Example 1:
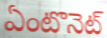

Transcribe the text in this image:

ఏంటొనెట్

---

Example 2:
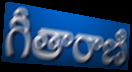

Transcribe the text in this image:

గీతారాణి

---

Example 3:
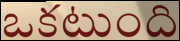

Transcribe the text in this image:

ఒకటుంది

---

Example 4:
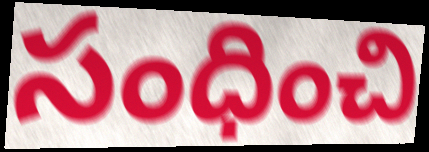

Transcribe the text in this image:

సంధించి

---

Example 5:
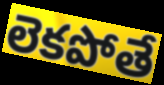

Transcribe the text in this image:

లెకపోతే